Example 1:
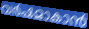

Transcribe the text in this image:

വർഷമാകാൻ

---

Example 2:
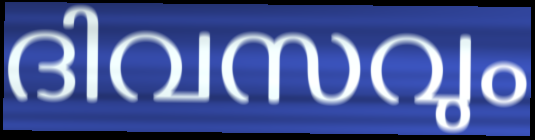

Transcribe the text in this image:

ദിവസവും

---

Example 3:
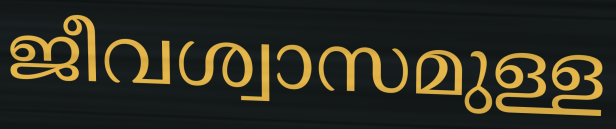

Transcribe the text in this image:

ജീവശ്വാസമുള്ള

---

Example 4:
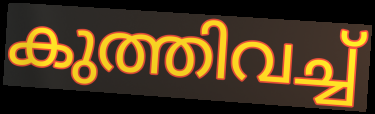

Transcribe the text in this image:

കുത്തിവച്ച്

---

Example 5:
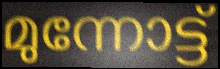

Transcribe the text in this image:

മുന്നോട്ട്